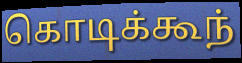
கொடிக்கூந்